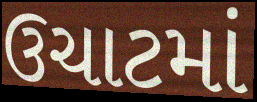
ઉચાટમાં